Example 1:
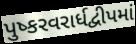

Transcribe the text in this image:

પુષ્કરવરાર્ધદ્વીપમાં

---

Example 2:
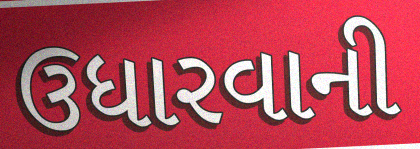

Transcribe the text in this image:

ઉધારવાની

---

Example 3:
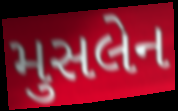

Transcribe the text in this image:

મુસલેન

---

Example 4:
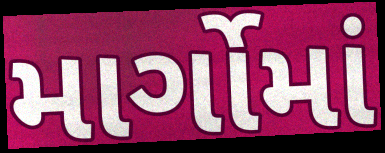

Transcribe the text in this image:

માર્ગોમાં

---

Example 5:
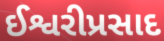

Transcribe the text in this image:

ઈશ્વરીપ્રસાદ